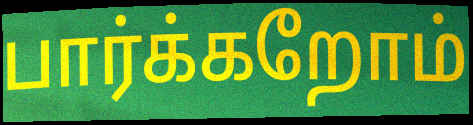
பார்க்கறோம்